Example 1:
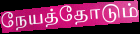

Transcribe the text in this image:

நேயத்தோடும்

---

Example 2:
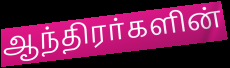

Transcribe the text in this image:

ஆந்திரர்களின்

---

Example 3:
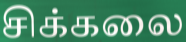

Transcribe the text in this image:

சிக்கலை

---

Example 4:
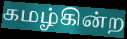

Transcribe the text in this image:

கமழ்கின்ற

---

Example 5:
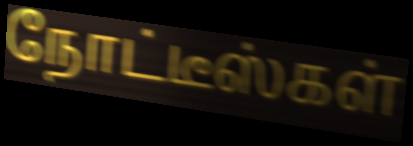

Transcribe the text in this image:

நோட்டீஸ்கள்